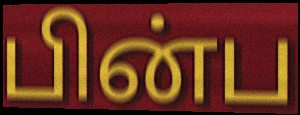
பின்ப